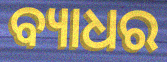
ବ୍ୟାଧର